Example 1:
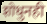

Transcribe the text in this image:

शोधुनही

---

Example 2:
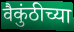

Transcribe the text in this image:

वैकुंठीच्या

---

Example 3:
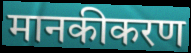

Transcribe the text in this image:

मानकीकरण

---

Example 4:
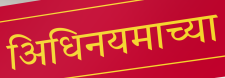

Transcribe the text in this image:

अिधिनयमाच्या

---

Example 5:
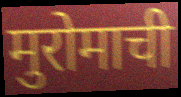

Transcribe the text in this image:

मुरोमाची